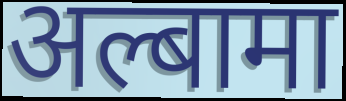
अल्बामा